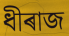
ধীৰাজ